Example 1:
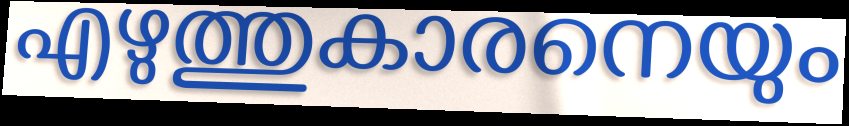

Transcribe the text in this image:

എഴുത്തുകാരനെയും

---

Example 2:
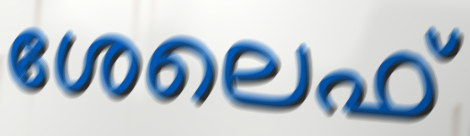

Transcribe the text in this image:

ശേലെഫ്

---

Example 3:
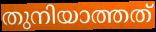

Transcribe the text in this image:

തുനിയാത്തത്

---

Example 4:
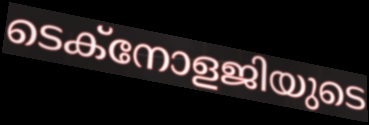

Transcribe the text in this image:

ടെക്നോളജിയുടെ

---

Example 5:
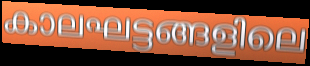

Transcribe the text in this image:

കാലഘട്ടങ്ങളിലെ